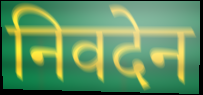
निवदेन